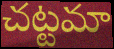
చట్టమా